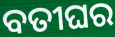
ବତୀଘର